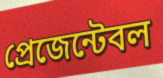
প্রেজেন্টেবল